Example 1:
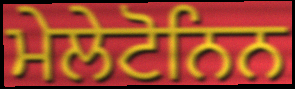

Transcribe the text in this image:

ਮੇਲੇਟੋਨਿਨ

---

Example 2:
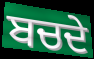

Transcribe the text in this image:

ਬਚਦੇ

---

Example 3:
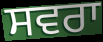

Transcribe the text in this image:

ਸਵਰਾ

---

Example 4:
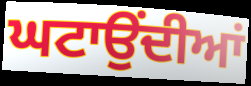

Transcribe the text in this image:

ਘਟਾਉਂਦੀਆਂ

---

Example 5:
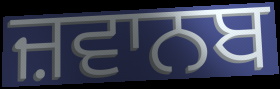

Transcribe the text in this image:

ਜ਼ਵਾਨਬ